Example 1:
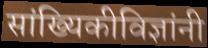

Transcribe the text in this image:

सांख्यिकीविज्ञांनी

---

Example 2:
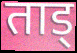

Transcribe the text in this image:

ताड्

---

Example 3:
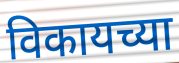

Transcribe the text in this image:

विकायच्या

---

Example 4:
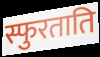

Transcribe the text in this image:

स्फुरताति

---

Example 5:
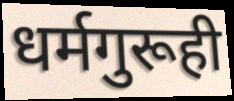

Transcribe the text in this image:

धर्मगुरूही